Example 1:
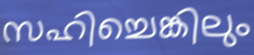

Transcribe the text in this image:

സഹിച്ചെങ്കിലും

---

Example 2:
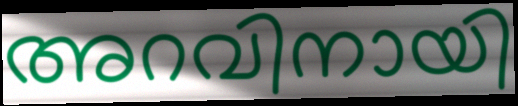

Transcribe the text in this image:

അറവിനായി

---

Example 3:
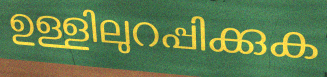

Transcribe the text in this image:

ഉള്ളിലുറപ്പിക്കുക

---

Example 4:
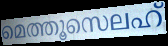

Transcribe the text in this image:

മെത്തൂസെലഹ്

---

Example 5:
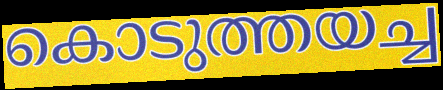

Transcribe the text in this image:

കൊടുത്തയച്ച